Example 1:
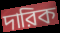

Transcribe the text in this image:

দারিক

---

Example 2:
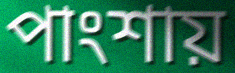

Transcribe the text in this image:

পাংশায়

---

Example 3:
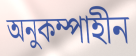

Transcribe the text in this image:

অনুকম্পাহীন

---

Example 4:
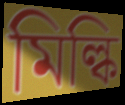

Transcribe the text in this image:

মিল্কি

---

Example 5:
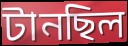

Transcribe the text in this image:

টানছিল